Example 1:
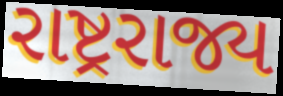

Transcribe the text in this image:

રાષ્ટ્રરાજ્ય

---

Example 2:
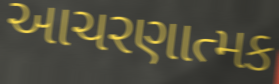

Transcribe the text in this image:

આચરણાત્મક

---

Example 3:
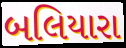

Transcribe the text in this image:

બલિયારા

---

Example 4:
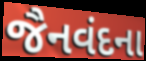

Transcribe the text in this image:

જૈનવંદના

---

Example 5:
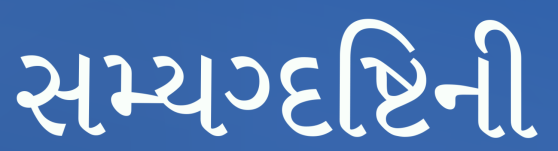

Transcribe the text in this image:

સમ્યગ્દષ્ટિની